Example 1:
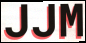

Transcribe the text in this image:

JJM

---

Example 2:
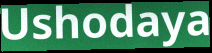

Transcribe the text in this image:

Ushodaya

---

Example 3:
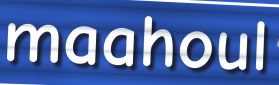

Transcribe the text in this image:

maahoul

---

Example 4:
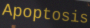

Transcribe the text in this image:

Apoptosis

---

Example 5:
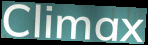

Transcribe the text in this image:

Climax